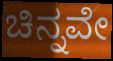
ಚಿನ್ನವೇ